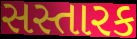
સસ્તારક